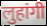
लुहांगी